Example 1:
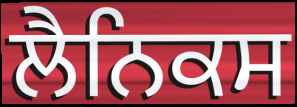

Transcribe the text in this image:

ਲੈਨਿਕਸ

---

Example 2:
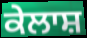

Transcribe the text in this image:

ਕੇਲਾਸ਼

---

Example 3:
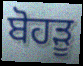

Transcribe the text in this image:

ਬੋਹੜੂ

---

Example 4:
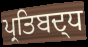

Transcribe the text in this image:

ਪ੍ਰਤਿਬਦ੍ਧ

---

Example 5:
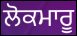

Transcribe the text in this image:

ਲੋਕਮਾਰੂ